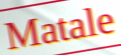
Matale